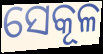
ସେକୂଳ